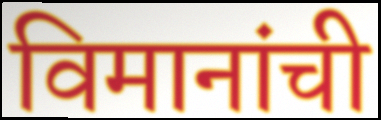
विमानांची